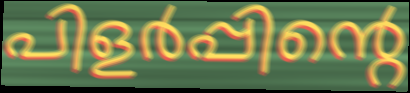
പിളർപ്പിന്റെ